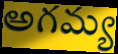
అగమ్య